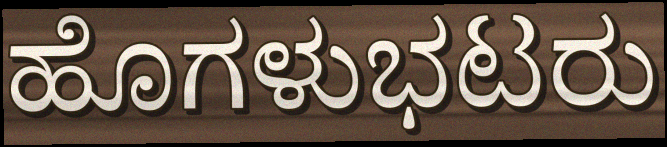
ಹೊಗಳುಭಟರು